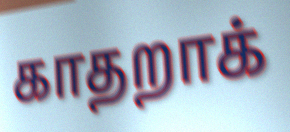
காதறாக்